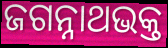
ଜଗନ୍ନାଥଭକ୍ତ